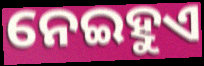
ନେଇହୁଏ